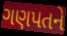
ગણપતને